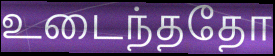
உடைந்ததோ